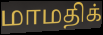
மாமதிக்